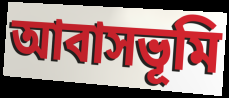
আবাসভূমি